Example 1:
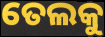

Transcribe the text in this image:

ତେଲକୁ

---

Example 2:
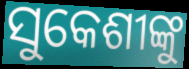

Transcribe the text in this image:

ସୁକେଶୀଙ୍କୁ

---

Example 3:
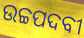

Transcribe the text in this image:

ଉଚ୍ଚପଦବୀ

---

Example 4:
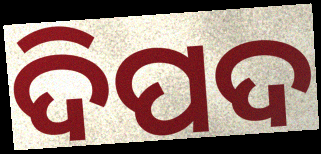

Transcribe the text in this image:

ଦିପଦ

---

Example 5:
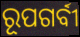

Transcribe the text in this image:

ରୂପଗର୍ବୀ